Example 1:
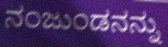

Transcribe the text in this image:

ನಂಜುಂಡನನ್ನು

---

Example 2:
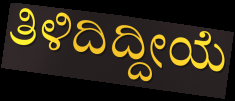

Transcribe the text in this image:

ತಿಳಿದಿದ್ದೀಯೆ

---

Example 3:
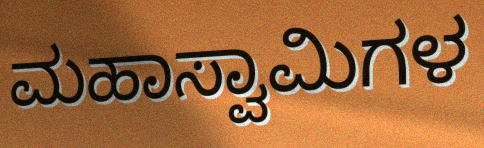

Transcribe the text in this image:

ಮಹಾಸ್ವಾಮಿಗಳ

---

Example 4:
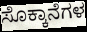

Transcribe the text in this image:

ಸೊಕ್ಕಾನೆಗಳ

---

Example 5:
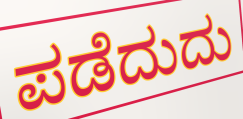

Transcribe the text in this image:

ಪಡೆದುದು